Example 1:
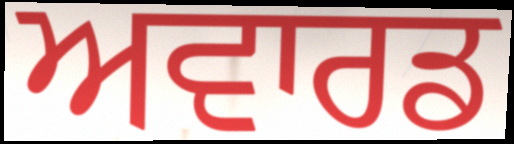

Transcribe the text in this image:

ਅਵਾਰਡ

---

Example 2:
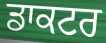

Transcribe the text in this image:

ਡਾਕਟਰ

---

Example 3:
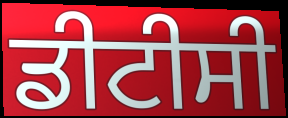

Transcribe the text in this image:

ਡੀਟੀਸੀ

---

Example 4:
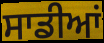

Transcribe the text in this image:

ਸਾਡੀਆਂ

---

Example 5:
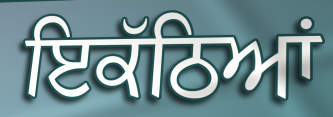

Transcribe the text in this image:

ਇਕੱਠਿਆਂ